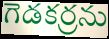
గెడకర్రను